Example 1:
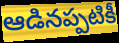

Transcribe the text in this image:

ఆడినప్పటికీ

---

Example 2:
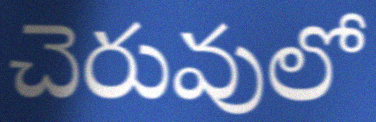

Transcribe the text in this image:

చెరువులో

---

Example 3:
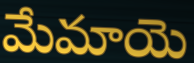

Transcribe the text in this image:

మేమాయె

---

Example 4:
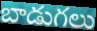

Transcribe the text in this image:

బాడుగలు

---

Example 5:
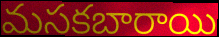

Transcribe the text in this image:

మసకబారాయి